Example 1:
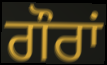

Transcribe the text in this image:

ਗੌਰਾਂ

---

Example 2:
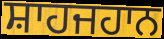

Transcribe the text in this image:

ਸ਼ਾਹਜਹਾਨ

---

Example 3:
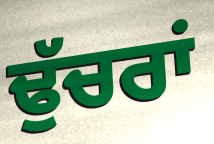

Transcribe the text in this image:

ਢੁੱਚਰਾਂ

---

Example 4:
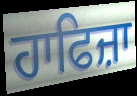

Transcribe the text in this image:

ਹਾਫਿਜ਼ਾ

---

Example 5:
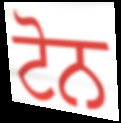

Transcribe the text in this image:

ਟੋਨ